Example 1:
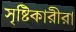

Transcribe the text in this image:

সৃষ্টিকারীরা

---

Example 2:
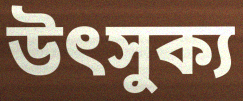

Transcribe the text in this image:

উৎসুক্য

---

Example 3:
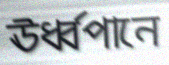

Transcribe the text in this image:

ঊর্ধ্বপানে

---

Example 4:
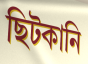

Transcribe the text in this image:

ছিটকানি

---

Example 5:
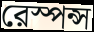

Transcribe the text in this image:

রেস্পন্স